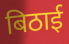
बिठाई